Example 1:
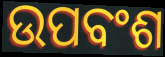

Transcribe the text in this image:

ଉପବଂଶ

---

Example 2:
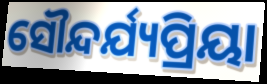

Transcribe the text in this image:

ସୌନ୍ଦର୍ଯ୍ୟପ୍ରିୟା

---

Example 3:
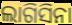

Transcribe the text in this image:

ଲାଗିସିନା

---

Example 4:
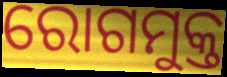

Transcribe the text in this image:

ରୋଗମୁକ୍ତ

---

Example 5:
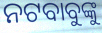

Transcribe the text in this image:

ନଟବାବୁଙ୍କୁ